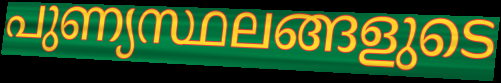
പുണ്യസ്ഥലങ്ങളുടെ